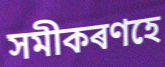
সমীকৰণহে